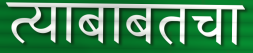
त्याबाबतचा